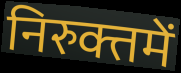
निरुक्तमें